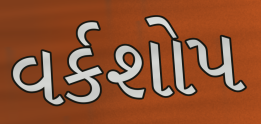
વર્કશોપ